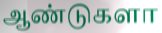
ஆண்டுகளா